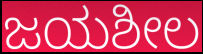
ಜಯಶೀಲ